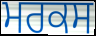
ਮਰਕਸ